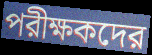
পরীক্ষকদের